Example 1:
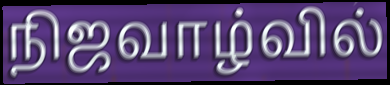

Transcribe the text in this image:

நிஜவாழ்வில்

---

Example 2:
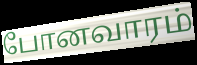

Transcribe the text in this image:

போனவாரம்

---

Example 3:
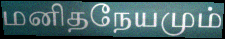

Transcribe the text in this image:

மனிதநேயமும்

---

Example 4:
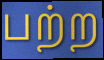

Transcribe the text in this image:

பற்ற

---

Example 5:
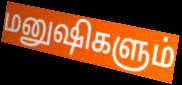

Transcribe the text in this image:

மனுஷிகளும்